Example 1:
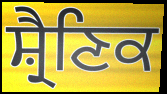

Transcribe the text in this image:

ਸ਼੍ਰੈਣਿਕ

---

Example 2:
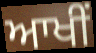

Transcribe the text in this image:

ਆਖੀਂ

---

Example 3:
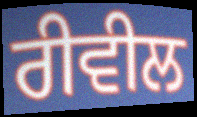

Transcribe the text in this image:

ਰੀਵੀਲ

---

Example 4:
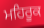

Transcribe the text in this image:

ਮਹਿਰੂਕ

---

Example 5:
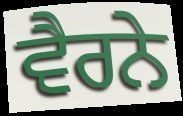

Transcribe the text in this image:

ਵੈਰਨੇ